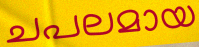
ചപലമായ